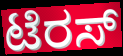
ಟೆರಸ್